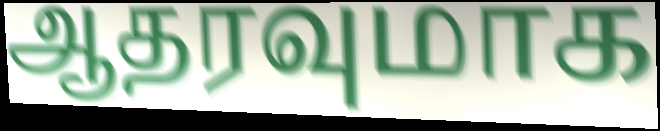
ஆதரவுமாக